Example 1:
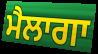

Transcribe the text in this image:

ਮੈਲਾਗਾ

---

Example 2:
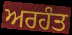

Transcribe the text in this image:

ਅਰਹੰਤ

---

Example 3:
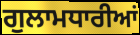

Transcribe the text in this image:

ਗੁਲਾਮਧਾਰੀਆਂ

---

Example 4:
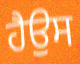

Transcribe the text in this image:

ਹੈਉਸ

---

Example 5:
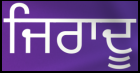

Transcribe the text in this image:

ਜਿਰਾਦੂ